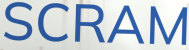
SCRAM